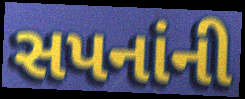
સપનાંની